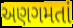
અણગમતાં